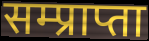
सम्प्राप्ता